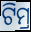
ଟିମ୍ର